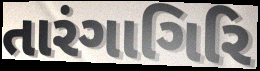
તારંગાગિરિ